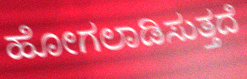
ಹೋಗಲಾಡಿಸುತ್ತದೆ